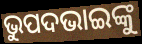
ଭୁପଦଭାଇଙ୍କୁ